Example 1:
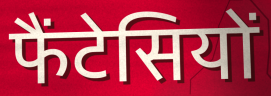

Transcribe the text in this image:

फैंटेसियों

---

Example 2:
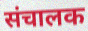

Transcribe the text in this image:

संचालक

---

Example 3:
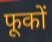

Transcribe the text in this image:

फूकों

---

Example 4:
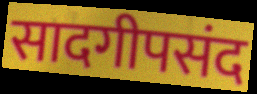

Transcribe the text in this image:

सादगीपसंद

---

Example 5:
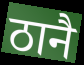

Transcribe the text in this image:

ठानै